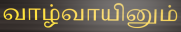
வாழ்வாயினும்